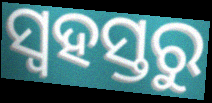
ସ୍ୱହସ୍ତରୁ